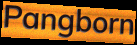
Pangborn